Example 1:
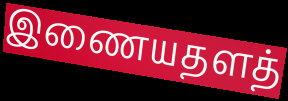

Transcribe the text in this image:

இணையதளத்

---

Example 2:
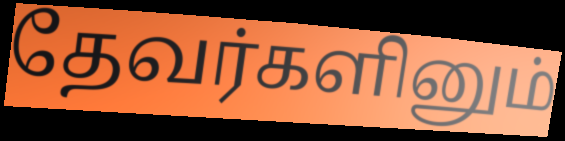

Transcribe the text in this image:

தேவர்களினும்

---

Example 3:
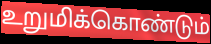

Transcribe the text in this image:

உறுமிக்கொண்டும்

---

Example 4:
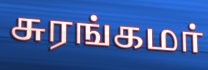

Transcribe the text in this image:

சுரங்கமர்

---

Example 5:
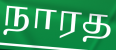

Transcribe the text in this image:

நாரத